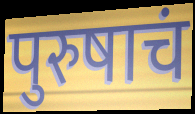
पुरुषाचं